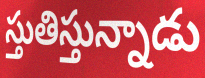
స్తుతిస్తున్నాడు